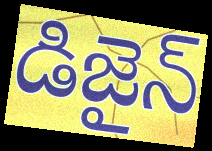
డిజైన్